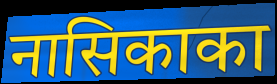
नासिकाका